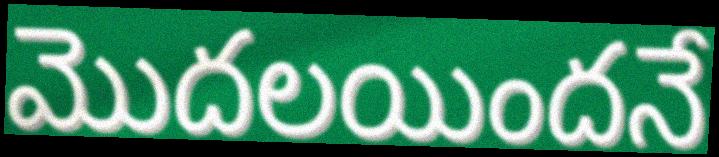
మొదలయిందనే